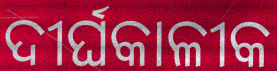
ଦୀର୍ଘକାଳୀକ